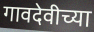
गावदेवीच्या